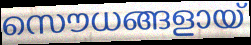
സൌധങ്ങളായ്